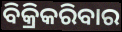
ବିକ୍ରିକରିବାର